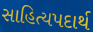
સાહિત્યપદાર્થ